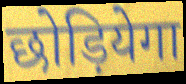
छोड़ियेगा